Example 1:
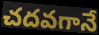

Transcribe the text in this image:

చదవగానే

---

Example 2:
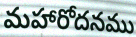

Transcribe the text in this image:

మహారోదనము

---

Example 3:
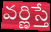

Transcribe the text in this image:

వర్ణిస్తే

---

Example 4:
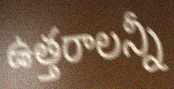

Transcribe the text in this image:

ఉత్తరాలన్నీ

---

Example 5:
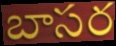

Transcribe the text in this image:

బాసర